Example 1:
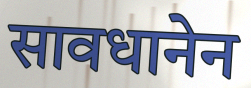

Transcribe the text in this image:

सावधानेन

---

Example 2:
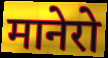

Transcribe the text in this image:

मानेरो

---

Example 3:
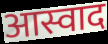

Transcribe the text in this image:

आस्‍वाद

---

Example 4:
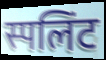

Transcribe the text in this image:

स्पलिंट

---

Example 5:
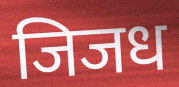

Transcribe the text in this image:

जिजध